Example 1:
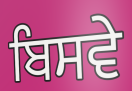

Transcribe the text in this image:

ਬਿਸਵੇ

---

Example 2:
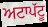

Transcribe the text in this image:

ਅਟਾਪੱਟੂ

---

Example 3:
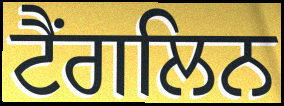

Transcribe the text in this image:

ਟੈਂਗਲਿਨ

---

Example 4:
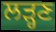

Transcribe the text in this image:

ਲੜ੍ਹਣ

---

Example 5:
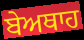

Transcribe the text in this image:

ਬੇਅਥਾਹ